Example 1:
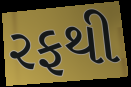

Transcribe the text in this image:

રફથી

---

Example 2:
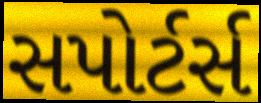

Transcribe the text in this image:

સપોર્ટર્સ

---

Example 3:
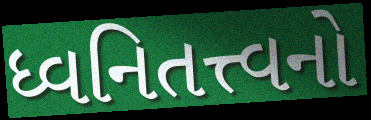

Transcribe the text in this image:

ધ્વનિતત્ત્વનો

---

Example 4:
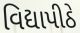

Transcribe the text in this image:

વિદ્યાપીઠે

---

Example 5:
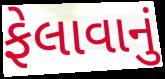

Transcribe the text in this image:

ફેલાવાનું